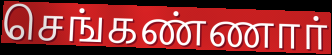
செங்கண்ணார்